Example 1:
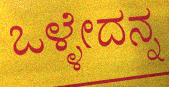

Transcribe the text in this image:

ಒಳ್ಳೇದನ್ನ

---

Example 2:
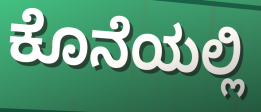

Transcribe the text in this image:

ಕೊನೆಯಲ್ಲಿ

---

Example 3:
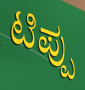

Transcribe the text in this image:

ಟಿಪ್ಪು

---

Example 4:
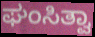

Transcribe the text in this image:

ಘಂಸಿತ್ವಾ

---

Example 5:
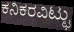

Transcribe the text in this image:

ಕನಿಕರವಿಟ್ಟು